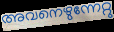
അവനെഴുന്നേറ്റു